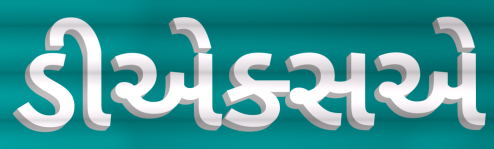
ડીએક્સએ